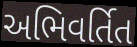
અભિવર્તિત